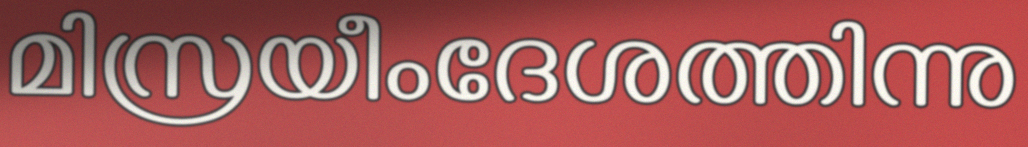
മിസ്രയീംദേശത്തിന്നു